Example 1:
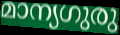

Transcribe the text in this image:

മാന്യഗുരു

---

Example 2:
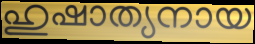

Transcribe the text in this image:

ഹുഷാത്യനായ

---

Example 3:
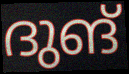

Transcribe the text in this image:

ദുങ്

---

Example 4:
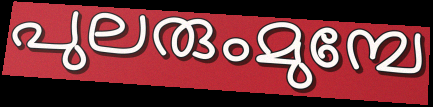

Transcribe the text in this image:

പുലരുംമുമ്പേ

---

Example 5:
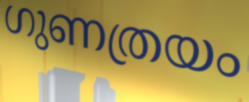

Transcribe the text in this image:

ഗുണത്രയം